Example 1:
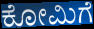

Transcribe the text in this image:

ಕೋಮಿಗೆ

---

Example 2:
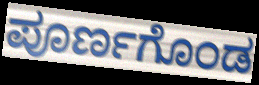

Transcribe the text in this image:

ಪೂರ್ಣಗೊಂಡ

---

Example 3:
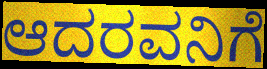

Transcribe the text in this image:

ಆದರವನಿಗೆ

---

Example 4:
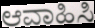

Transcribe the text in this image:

ಆವಾಹಿಸಿ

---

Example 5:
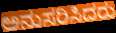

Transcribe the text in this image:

ಅನುಸರಿಸಿದರು